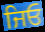
ਜਿਓ